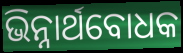
ଭିନ୍ନାର୍ଥବୋଧକ